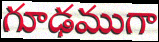
గూఢముగా